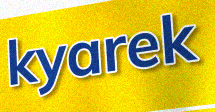
kyarek